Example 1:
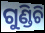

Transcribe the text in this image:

ଗୁଣ୍ଡିଚି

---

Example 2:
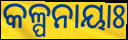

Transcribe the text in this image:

କଳ୍ପନାୟାଃ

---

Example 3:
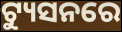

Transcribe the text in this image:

ଟ୍ୟୁସନରେ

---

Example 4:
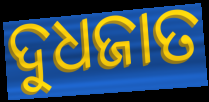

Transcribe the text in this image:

ଦୁଧଜାତ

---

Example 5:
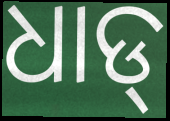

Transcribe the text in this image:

ଧାଡ୍